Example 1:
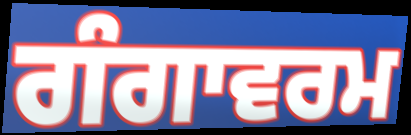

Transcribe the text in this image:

ਗੰਗਾਵਰਮ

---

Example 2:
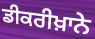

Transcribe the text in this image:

ਡੀਕਰੀਖ਼ਾਨੇ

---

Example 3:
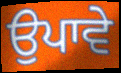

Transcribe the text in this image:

ਉਪਾਵੇ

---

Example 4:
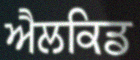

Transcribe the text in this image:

ਐਲਕਿਡ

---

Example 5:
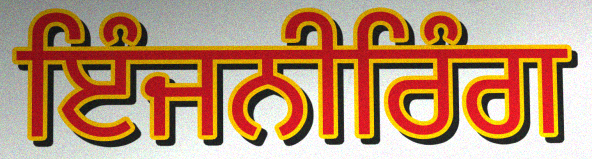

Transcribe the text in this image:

ਇੰਜਨੀਰਿੰਗ